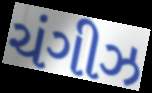
ચંગીઝ